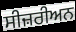
ਸੀਜ਼ਰੀਅਨ